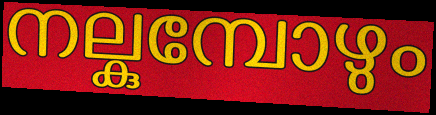
നല്കുമ്പോഴും